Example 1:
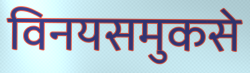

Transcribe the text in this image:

विनयसमुकसे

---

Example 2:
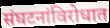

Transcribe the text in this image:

संघटनांविरोधात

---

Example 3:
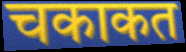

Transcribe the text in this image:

चकाकत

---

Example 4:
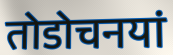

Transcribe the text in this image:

तोडोचनयां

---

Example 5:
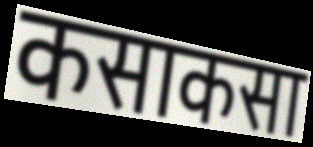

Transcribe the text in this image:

कसाकसा